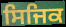
ਸਿਜਿਕ